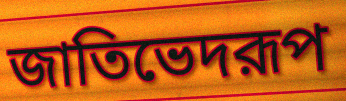
জাতিভেদরূপ